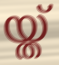
യ്ത്